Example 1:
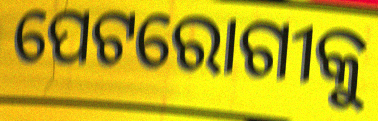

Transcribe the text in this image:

ପେଟରୋଗୀକୁ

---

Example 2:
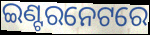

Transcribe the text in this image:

ଇଣ୍ଟରନେଟରେ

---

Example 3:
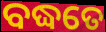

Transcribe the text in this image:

ବଦ୍ଧତେ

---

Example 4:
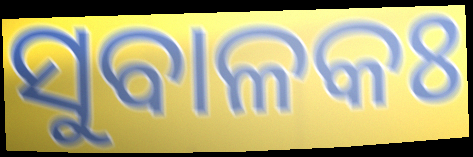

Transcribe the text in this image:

ସୁବାଳକଃ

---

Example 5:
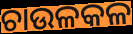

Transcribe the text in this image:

ଚାଉଳକଳ